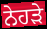
ਨੇਹੜੇ